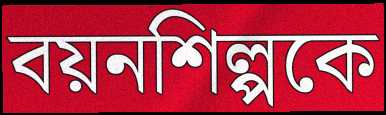
বয়নশিল্পকে